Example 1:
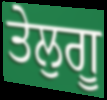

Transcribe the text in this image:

ਤੇਲੁਗੂ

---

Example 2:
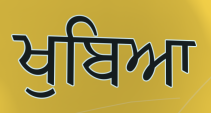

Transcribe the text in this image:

ਖੁਬਿਆ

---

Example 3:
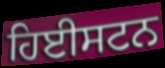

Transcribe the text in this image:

ਹਿਈਸਟਨ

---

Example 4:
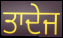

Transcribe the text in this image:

ਤਾਦੇਜ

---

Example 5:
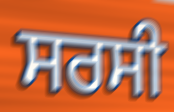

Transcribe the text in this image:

ਸਰਸੀ